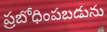
ప్రబోధింపబడును